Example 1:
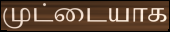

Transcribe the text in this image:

முட்டையாக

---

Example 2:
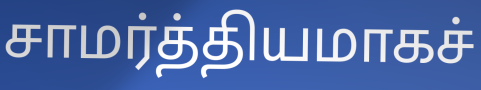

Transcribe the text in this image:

சாமர்த்தியமாகச்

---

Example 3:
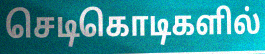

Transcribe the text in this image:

செடிகொடிகளில்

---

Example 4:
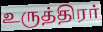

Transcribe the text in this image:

உருத்திரர்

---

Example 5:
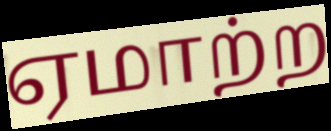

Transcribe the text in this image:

ஏமாற்ற